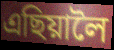
এছিয়ালৈ